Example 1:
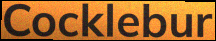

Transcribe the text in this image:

Cocklebur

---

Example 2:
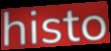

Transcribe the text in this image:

histo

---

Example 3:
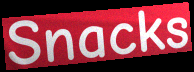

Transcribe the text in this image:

Snacks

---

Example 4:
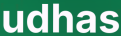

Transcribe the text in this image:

udhas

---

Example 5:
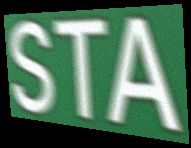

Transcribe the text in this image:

STA